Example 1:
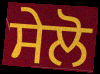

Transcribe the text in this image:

ਸੇਲੋ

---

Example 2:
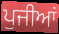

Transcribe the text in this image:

ਪੁਜੀਆਂ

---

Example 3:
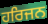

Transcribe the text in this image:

ਹਰਿਜਨ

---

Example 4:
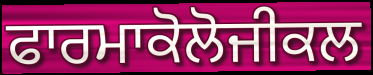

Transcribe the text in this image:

ਫਾਰਮਾਕੋਲੋਜੀਕਲ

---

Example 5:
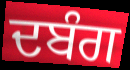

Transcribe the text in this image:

ਦਬੰਗ